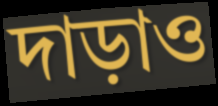
দাড়াও